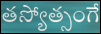
తస్యోత్సంగే